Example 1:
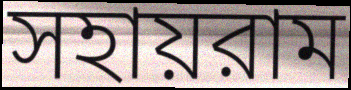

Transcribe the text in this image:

সহায়রাম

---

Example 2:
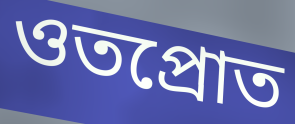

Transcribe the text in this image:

ওতপ্রোত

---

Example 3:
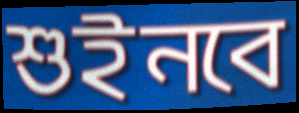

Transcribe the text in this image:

শুইনবে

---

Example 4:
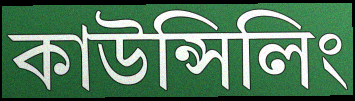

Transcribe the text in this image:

কাউন্সিলিং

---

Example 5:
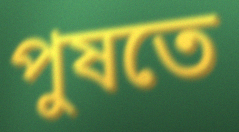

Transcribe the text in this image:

পুষতে